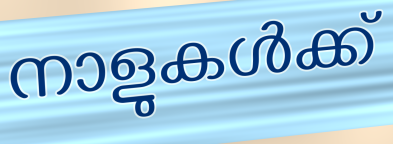
നാളുകൾക്ക്